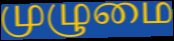
முழுமை